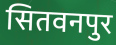
सितवनपुर